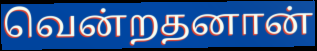
வென்றதனான்